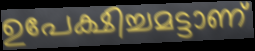
ഉപേക്ഷിച്ചമട്ടാണ്